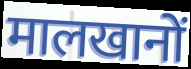
मालखानों